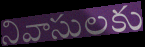
నివాసులకు